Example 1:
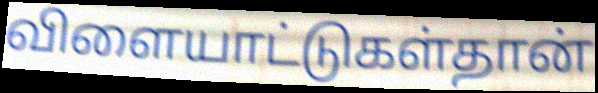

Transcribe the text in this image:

விளையாட்டுகள்தான்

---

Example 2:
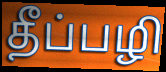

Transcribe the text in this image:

தீப்பழி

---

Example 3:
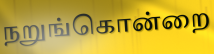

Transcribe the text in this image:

நறுங்கொன்றை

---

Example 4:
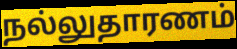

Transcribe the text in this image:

நல்லுதாரணம்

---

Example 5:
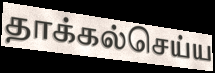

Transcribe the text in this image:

தாக்கல்செய்ய